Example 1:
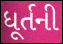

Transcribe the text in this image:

ધૂર્તની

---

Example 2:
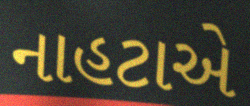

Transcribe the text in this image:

નાહટાએ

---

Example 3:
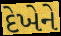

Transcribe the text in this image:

દેખેને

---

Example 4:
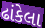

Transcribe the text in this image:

ઢાંકેલા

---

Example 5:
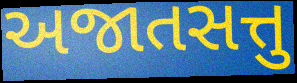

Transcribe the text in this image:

અજાતસત્તુ